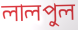
লালপুল